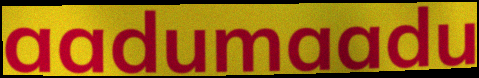
aadumaadu